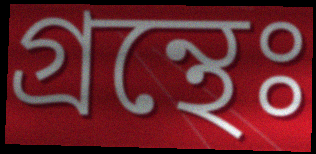
গ্রন্থেঃ